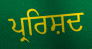
ਪ੍ਰਰਿਸ਼ਦ